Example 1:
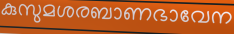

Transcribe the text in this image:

കുസുമശരബാണഭാവേന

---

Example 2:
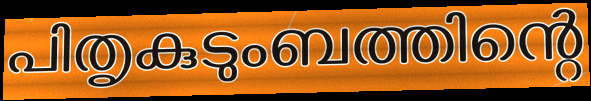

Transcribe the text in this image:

പിതൃകുടുംബത്തിന്റെ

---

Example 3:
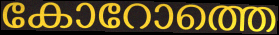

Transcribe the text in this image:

കോറോത്തെ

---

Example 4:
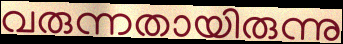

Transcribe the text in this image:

വരുന്നതായിരുന്നു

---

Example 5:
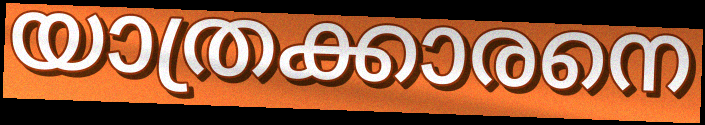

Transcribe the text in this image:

യാത്രക്കാരനെ